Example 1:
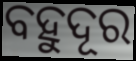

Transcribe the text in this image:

ବହୁଦୂର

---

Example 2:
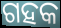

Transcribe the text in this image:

ଗହକ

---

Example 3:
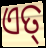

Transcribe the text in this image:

ଏତ୍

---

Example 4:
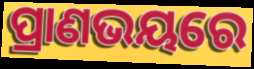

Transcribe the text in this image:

ପ୍ରାଣଭୟରେ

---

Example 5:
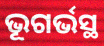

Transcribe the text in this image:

ଭୂଗର୍ଭସ୍ଥ